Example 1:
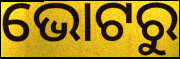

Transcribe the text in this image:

ଭୋଟରୁ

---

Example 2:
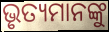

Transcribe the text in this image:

ଭୃତ୍ୟମାନଙ୍କୁ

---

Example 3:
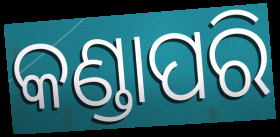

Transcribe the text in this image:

କଣ୍ଡାପରି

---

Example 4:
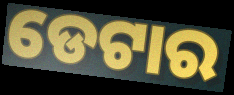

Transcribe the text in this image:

ଡେଟାର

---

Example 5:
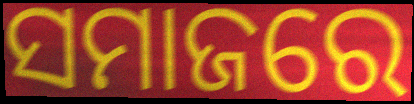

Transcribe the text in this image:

ସମାଜରେ